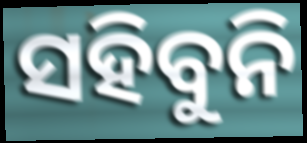
ସହିବୁନି